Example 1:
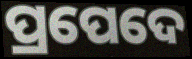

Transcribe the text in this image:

ପ୍ରପେଦେ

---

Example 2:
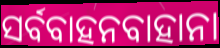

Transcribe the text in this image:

ସର୍ବବାହନବାହାନା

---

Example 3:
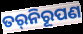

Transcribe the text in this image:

ତର୍‌ନିରୂପଣ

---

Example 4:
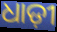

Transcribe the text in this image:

ଧାଡ଼ୀ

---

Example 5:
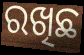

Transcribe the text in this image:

ରଖିଛ